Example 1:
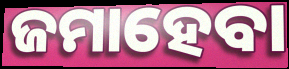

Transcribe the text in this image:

ଜମାହେବା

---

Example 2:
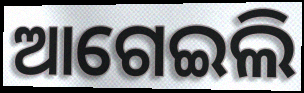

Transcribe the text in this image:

ଆଗେଇଲି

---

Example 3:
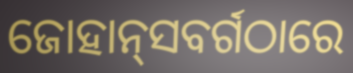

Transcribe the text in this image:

ଜୋହାନ୍‌ସବର୍ଗଠାରେ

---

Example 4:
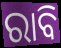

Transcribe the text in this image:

ରାବି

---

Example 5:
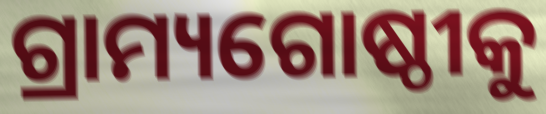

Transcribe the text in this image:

ଗ୍ରାମ୍ୟଗୋଷ୍ଠୀକୁ